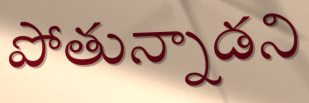
పోతున్నాడని